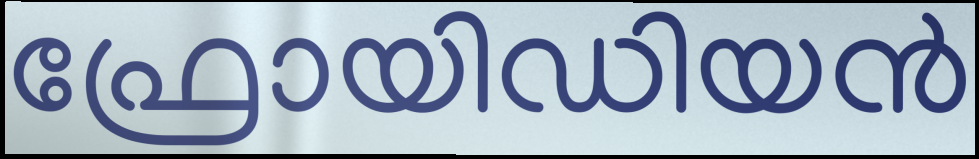
ഫ്രോയിഡിയൻ